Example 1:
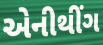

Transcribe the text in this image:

એનીથીંગ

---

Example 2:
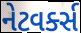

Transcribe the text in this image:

નેટવર્ક્સ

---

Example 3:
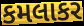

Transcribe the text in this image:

કમલાકર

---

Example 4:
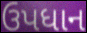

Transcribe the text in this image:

ઉપધાન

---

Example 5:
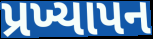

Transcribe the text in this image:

પ્રખ્યાપન